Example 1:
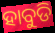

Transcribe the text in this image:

ହାବୁଡି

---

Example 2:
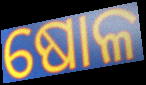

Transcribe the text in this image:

ଷୋଳ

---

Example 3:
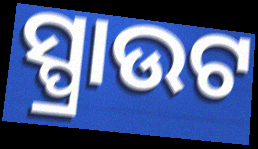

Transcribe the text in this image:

ସ୍ପ୍ରାଉଟ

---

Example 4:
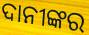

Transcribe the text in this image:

ଦାନୀଙ୍କର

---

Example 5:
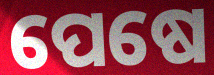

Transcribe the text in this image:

ପେଷେ